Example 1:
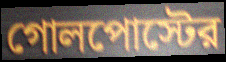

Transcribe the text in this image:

গোলপোস্টের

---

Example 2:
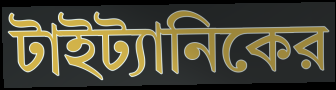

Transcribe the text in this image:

টাইট্যানিকের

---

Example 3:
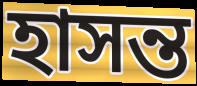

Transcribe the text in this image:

হাসন্ত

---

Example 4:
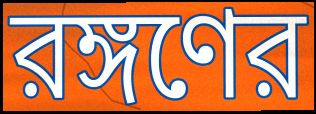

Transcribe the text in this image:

রঙ্গণের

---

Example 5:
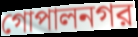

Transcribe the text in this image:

গোপালনগর